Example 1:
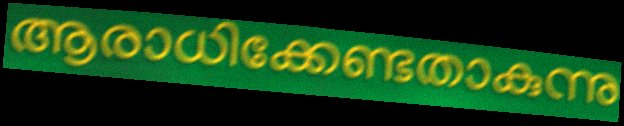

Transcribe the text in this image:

ആരാധിക്കേണ്ടതാകുന്നു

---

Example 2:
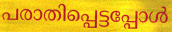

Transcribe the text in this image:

പരാതിപ്പെട്ടപ്പോൾ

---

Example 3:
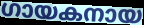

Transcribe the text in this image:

ഗായകനായ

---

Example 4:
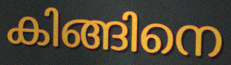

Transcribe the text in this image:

കിങ്ങിനെ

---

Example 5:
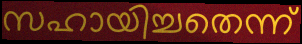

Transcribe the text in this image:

സഹായിച്ചതെന്ന്